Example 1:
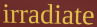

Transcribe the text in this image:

irradiate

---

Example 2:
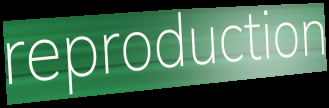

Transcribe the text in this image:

reproduction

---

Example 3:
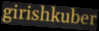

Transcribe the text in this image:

girishkuber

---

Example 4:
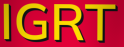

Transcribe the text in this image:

IGRT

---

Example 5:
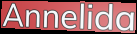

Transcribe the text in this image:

Annelida